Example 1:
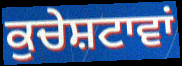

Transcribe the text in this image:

ਕੁਚੇਸ਼ਟਾਵਾਂ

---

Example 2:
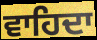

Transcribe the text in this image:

ਵਾਹਿਦਾ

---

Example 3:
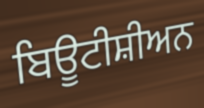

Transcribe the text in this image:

ਬਿਊਟੀਸ਼ੀਅਨ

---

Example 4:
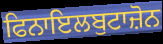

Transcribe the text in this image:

ਫਿਨਾਇਲਬੁਟਾਜ਼ੋਨ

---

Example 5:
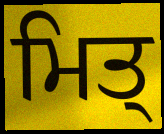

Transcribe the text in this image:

ਮਿਤ੍